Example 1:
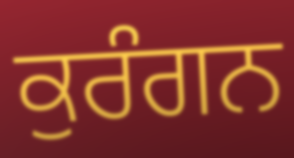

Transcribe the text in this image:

ਕੁਰੰਗਨ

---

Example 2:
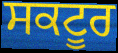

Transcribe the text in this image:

ਸਕਟੂਰ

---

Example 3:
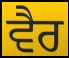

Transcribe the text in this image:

ਵੈਰ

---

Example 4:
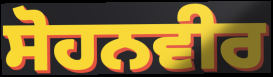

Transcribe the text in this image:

ਸੋਹਨਵੀਰ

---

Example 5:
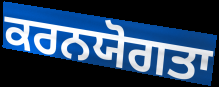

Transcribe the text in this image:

ਕਰਨਯੋਗਤਾ